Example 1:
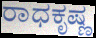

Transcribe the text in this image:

ರಾಧಕೃಷ್ಣ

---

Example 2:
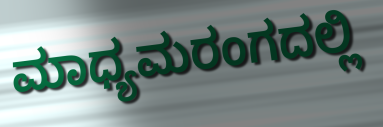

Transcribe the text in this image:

ಮಾಧ್ಯಮರಂಗದಲ್ಲಿ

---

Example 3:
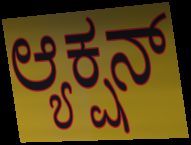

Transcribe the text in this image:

ಆ್ಯಕ್ಷನ್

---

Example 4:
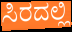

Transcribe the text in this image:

ಸಿರದಲ್ಲಿ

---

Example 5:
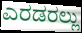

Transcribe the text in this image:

ಎರಡರಲ್ಲು